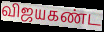
விஜயகண்ட